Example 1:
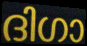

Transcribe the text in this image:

ദിഗാ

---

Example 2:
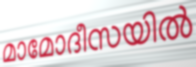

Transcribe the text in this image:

മാമോദീസയിൽ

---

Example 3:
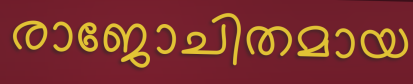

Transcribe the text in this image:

രാജോചിതമായ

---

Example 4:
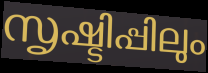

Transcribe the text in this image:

സൃഷ്ടിപ്പിലും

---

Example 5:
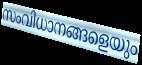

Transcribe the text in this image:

സംവിധാനങ്ങളെയും